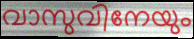
വാസുവിനേയും